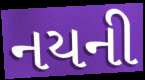
નયની